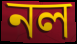
নল